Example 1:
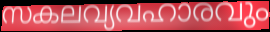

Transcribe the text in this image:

സകലവ്യവഹാരവും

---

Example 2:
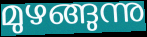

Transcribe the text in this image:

മുഴങ്ങുന്നു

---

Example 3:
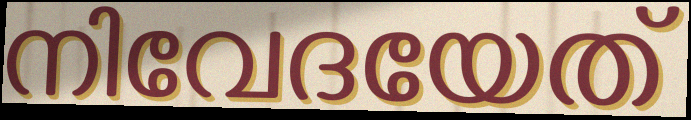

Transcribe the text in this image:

നിവേദയേത്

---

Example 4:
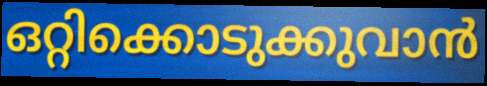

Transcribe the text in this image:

ഒറ്റിക്കൊടുക്കുവാൻ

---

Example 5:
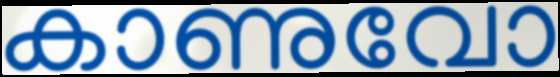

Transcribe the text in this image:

കാണുവോ